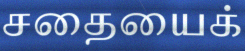
சதையைக்